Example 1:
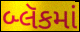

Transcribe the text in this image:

બ્લૅકમાં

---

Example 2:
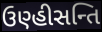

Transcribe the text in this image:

ઉણ્હીસન્તિ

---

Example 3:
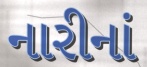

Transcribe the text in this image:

નારીનાં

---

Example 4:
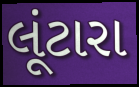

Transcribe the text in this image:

લૂંટારા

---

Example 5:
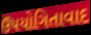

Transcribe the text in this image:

ઉપયોગિતાવાદ